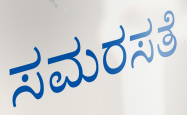
ಸಮರಸತೆ